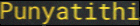
Punyatithi